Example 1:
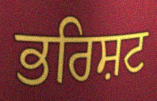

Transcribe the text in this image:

ਭਰਿਸ਼ਟ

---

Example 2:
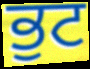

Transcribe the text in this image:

ਭੁਟ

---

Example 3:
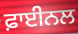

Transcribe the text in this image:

ਫ਼ਾਈਨਲ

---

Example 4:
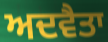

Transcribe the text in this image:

ਅਦਵੈਤਾ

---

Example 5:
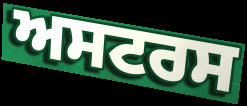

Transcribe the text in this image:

ਅਸਟਰਸ